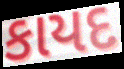
કાયદ